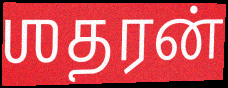
ஶதரன்